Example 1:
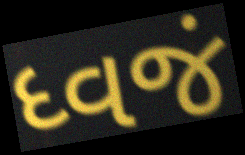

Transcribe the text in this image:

ધ્વજં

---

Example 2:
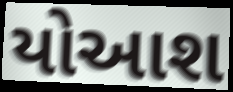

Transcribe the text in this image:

યોઆશ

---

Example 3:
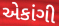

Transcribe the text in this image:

એકાંગી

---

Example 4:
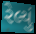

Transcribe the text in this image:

રેલ્યું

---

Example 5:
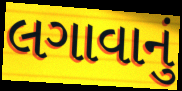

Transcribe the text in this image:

લગાવાનું